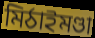
মিঠাইমণ্ডা